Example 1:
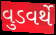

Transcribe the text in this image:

વુડવર્થે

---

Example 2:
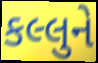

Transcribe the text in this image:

કલ્લુને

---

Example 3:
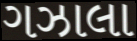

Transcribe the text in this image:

ગઝાલા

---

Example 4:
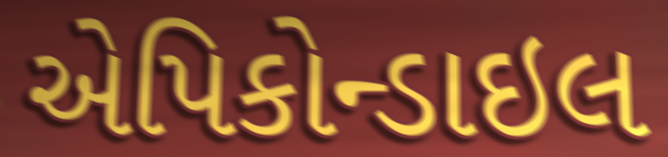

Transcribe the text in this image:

એપિકોન્ડાઇલ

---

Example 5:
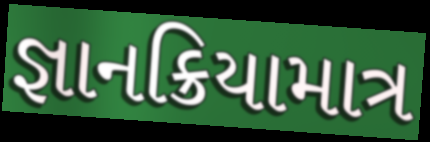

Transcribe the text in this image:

જ્ઞાનક્રિયામાત્ર